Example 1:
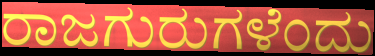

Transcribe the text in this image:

ರಾಜಗುರುಗಳೆಂದು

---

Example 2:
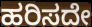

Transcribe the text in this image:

ಹರಿಸದೇ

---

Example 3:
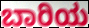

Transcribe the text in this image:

ಬಾರಿಯ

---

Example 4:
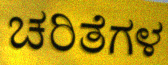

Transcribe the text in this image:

ಚರಿತೆಗಳ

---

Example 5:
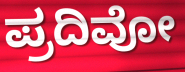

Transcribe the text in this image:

ಪ್ರದಿವೋ